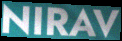
NIRAV